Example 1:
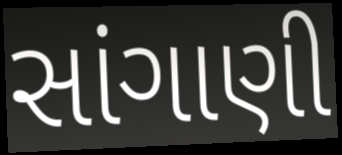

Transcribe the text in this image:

સાંગાણી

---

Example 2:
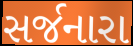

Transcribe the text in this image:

સર્જનારા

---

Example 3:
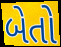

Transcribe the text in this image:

બેતો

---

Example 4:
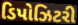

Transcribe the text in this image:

ડિપોઝિટરી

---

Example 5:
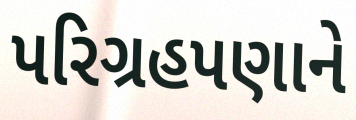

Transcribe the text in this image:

પરિગ્રહપણાને